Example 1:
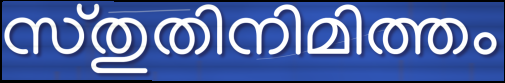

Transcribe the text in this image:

സ്തുതിനിമിത്തം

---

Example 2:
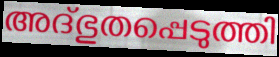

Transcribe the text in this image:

അദ്ഭുതപ്പെടുത്തി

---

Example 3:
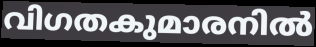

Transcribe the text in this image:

വിഗതകുമാരനിൽ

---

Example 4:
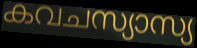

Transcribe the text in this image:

കവചസ്യാസ്യ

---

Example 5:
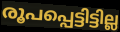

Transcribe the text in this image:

രൂപപ്പെട്ടിട്ടില്ല